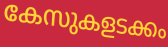
കേസുകളടക്കം